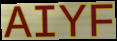
AIYF